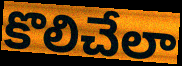
కొలిచేలా